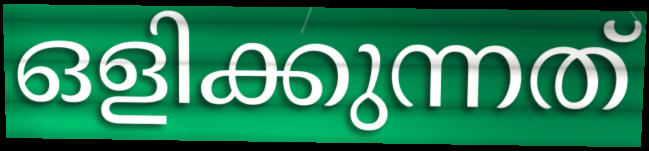
ഒളിക്കുന്നത്